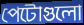
পেটোগুলো